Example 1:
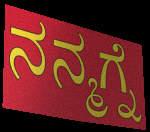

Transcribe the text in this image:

ನನ್ಮಗ್ನೆ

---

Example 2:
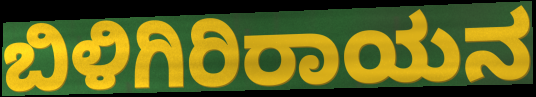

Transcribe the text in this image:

ಬಿಳಿಗಿರಿರಾಯನ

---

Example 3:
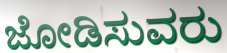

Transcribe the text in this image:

ಜೋಡಿಸುವರು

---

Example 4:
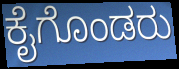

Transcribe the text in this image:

ಕೈಗೊಂಡರು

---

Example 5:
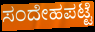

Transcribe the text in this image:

ಸಂದೇಹಪಟ್ಟೆ